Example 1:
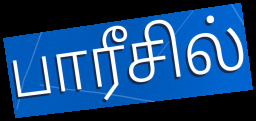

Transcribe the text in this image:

பாரீசில்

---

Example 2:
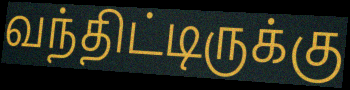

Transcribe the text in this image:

வந்திட்டிருக்கு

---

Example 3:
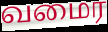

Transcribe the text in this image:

வமைர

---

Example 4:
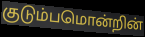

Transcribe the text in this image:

குடும்பமொன்றின்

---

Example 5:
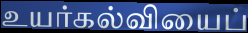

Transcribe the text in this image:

உயர்கல்வியைப்